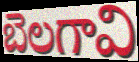
బెలగావి